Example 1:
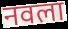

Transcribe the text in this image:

नवला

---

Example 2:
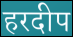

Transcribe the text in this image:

हरदीप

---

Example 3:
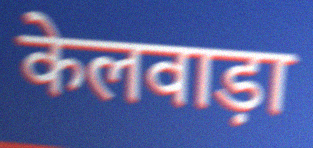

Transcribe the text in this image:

केलवाड़ा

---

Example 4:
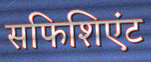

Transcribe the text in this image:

सफिशिएंट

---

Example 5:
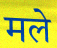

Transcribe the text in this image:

मले